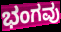
ಭಂಗವು